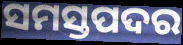
ସମସ୍ତପଦର